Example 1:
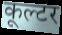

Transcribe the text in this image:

कूल्टर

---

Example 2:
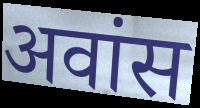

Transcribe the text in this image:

अवांस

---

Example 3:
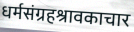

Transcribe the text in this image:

धर्मसंग्रहश्रावकाचार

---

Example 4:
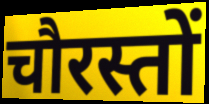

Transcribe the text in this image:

चौरस्तों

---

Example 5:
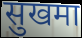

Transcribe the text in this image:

सुखमा